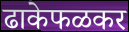
ढाकेफळकर